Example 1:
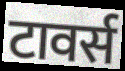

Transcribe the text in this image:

टावर्स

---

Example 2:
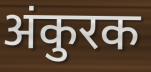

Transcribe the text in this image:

अंकुरक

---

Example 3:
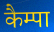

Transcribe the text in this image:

कैम्पा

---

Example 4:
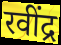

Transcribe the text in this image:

रवींद्र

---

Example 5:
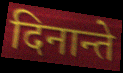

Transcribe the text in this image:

दिनान्ते